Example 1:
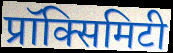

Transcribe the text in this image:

प्रॉक्सिमिटी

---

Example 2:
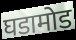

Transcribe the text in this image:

घडामोड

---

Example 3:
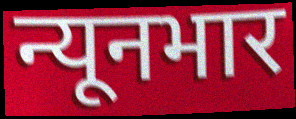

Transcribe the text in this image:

न्यूनभार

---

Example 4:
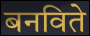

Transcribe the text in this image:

बनविते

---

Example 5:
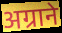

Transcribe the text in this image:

अग्राने